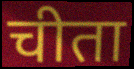
चीता